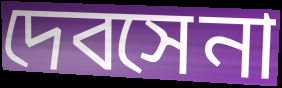
দেবসেনা